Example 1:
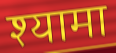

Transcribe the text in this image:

श्यामा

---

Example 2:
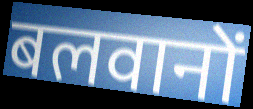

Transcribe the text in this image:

बलवानों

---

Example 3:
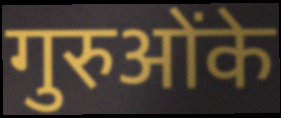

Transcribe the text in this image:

गुरुओंके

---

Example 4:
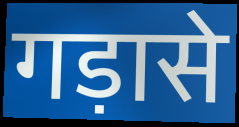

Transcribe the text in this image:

गड़ासे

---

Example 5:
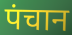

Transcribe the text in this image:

पंचान